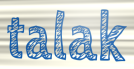
talak